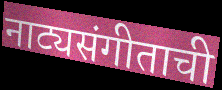
नाट्यसंगीताची